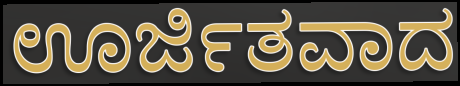
ಊರ್ಜಿತವಾದ